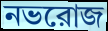
নভরোজ